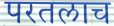
परतलाच